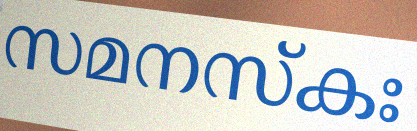
സമനസ്കഃ